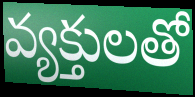
వ్యక్తులతో